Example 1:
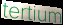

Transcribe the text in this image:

tertium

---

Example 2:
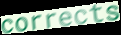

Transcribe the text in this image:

corrects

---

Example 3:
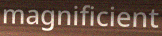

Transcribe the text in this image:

magnificient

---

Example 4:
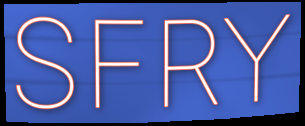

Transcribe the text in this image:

SFRY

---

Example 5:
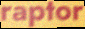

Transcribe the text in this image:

raptor